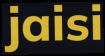
jaisi